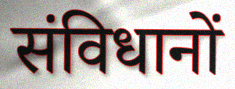
संविधानों